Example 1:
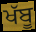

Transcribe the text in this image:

ਖੱਬੂ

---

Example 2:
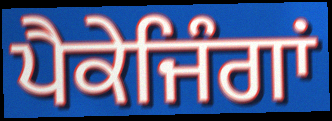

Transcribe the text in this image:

ਪੈਕੇਜਿੰਗਾਂ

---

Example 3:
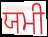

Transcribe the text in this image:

ਯਮੀ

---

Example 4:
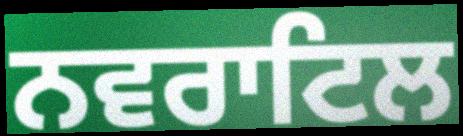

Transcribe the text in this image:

ਨਵਰਾਟਿਲ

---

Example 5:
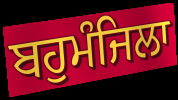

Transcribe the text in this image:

ਬਹੁਮੰਜਿਲਾ